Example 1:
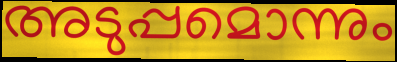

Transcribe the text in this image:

അടുപ്പമൊന്നും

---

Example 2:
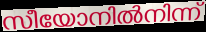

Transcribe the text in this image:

സീയോനിൽനിന്ന്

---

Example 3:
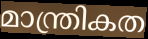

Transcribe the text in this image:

മാന്ത്രികത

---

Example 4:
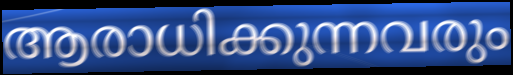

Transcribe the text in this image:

ആരാധിക്കുന്നവരും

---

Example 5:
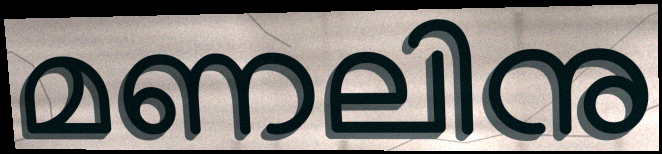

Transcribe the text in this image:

മണലിനു